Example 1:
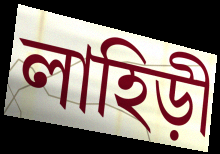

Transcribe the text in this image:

লাহিড়ী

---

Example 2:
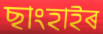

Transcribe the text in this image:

ছাংহাইৰ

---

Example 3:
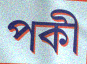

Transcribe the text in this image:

পকী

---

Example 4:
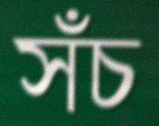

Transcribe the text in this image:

সঁচ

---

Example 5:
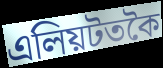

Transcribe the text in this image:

এলিয়টতকৈ